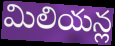
మిలియన్ల